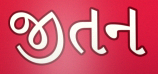
જીતન